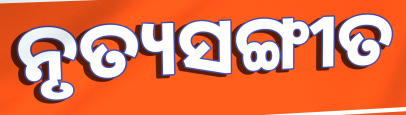
ନୃତ୍ୟସଙ୍ଗୀତ